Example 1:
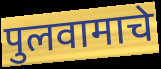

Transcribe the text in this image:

पुलवामाचे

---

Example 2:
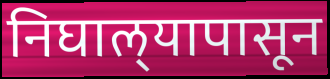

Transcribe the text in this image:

निघाल्यापासून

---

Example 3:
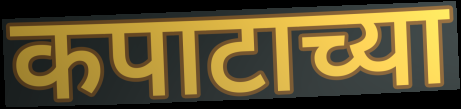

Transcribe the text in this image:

कपाटाच्या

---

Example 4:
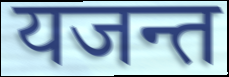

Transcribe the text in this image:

यजन्त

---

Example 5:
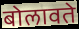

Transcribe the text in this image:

बोलावते